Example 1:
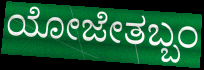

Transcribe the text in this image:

ಯೋಜೇತಬ್ಬಂ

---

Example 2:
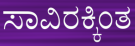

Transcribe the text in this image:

ಸಾವಿರಕ್ಕಿಂತ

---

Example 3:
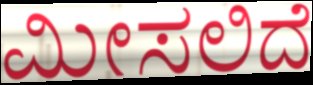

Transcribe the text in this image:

ಮೀಸಲಿದೆ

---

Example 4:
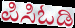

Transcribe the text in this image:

ಪಿಸಿಓಡಿ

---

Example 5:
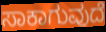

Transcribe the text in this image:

ಸಾಕಾಗುವುದೆ